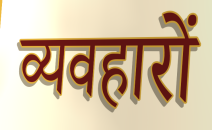
व्यवहारों